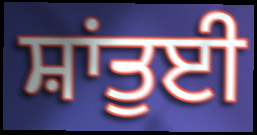
ਸ਼ਾਂਤੁਈ